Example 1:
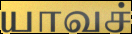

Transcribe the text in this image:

யாவச்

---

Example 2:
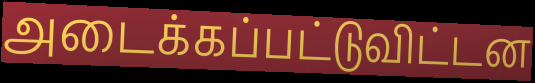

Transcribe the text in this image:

அடைக்கப்பட்டுவிட்டன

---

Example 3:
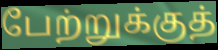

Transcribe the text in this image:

பேற்றுக்குத்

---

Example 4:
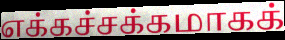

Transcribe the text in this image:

எக்கச்சக்கமாகக்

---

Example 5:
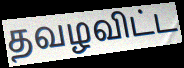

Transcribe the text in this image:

தவழவிட்ட